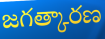
జగత్కారణ